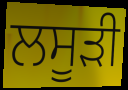
ਲਸੂੜੀ